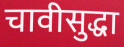
चावीसुद्धा